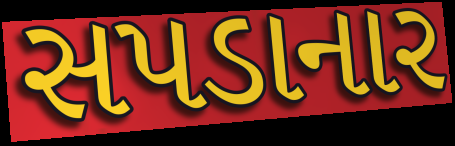
સપડાનાર